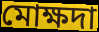
মোক্ষদা